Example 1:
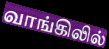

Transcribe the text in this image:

வாங்கிலில்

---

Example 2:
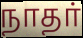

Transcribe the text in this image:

நாதர்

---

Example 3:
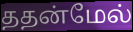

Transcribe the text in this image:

ததன்மேல்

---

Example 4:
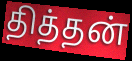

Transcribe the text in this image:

தித்தன்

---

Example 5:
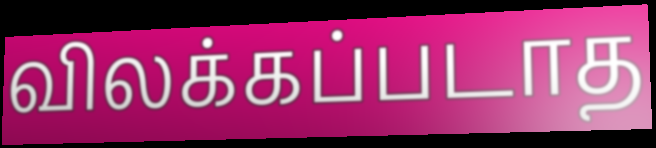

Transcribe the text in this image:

விலக்கப்படாத